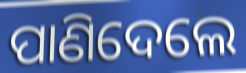
ପାଣିଦେଲେ